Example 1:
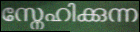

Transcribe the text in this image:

സ്നേഹിക്കുന്ന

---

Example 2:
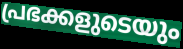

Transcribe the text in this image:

പ്രഭക്കളുടെയും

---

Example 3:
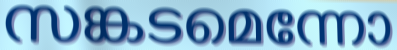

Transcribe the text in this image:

സങ്കടമെന്നോ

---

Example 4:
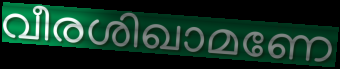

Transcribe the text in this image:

വീരശിഖാമണേ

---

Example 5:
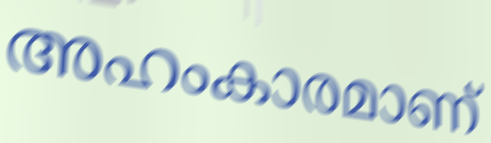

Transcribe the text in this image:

അഹംകാരമാണ്